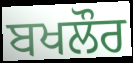
ਬਖਲੌਰ